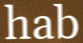
hab